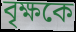
বৃক্ষকে